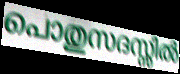
പൊതുസദസ്സിൽ